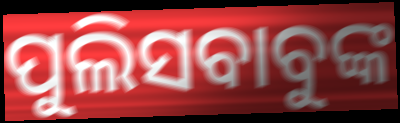
ପୁଲିସବାବୁଙ୍କ